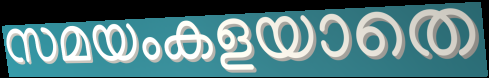
സമയംകളയാതെ